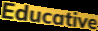
Educative